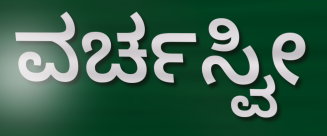
ವರ್ಚಸ್ವೀ